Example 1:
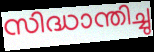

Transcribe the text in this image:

സിദ്ധാന്തിച്ചു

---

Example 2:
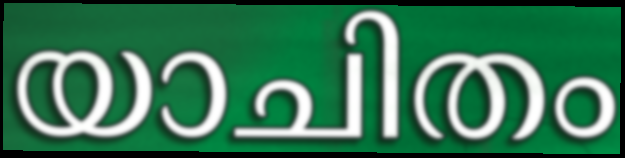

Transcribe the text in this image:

യാചിതം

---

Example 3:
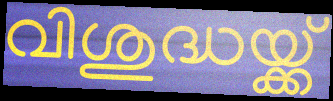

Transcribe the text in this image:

വിശുദ്ധയ്ക്ക്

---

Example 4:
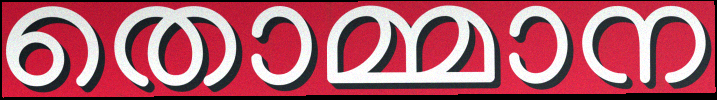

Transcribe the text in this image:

തൊമ്മാന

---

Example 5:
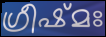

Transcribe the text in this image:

ഗ്രീഷ്മഃ